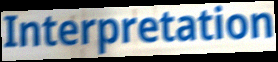
Interpretation